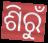
ଶିରୁଁ